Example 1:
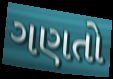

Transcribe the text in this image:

ગણતો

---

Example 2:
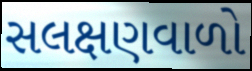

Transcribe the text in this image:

સલક્ષણવાળો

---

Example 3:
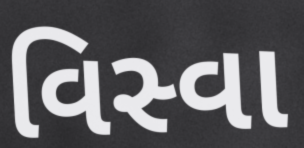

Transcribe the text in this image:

વિસ્વા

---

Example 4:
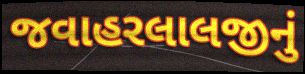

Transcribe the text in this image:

જવાહરલાલજીનું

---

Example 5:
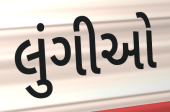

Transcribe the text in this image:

લુંગીઓ